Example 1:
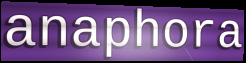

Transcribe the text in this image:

anaphora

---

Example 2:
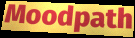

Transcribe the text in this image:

Moodpath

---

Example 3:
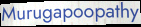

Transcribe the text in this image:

Murugapoopathy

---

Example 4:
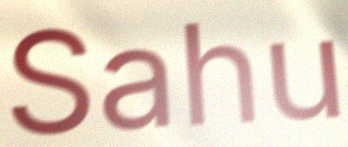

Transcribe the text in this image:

Sahu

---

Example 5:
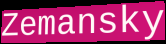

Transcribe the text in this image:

Zemansky